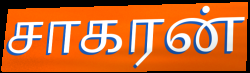
சாகரன்